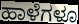
ಹಾಳೆಗಳೂ